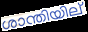
ശാന്തിയില്